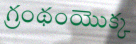
గ్రంథంయొక్క